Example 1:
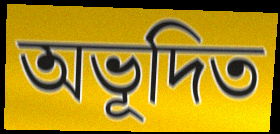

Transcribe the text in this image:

অভূদিত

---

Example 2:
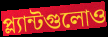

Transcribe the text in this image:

প্ল্যান্টগুলোও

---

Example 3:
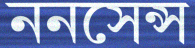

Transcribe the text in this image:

ননসেন্স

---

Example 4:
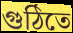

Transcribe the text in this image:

গুঠিতে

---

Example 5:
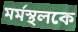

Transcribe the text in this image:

মর্মস্থলকে